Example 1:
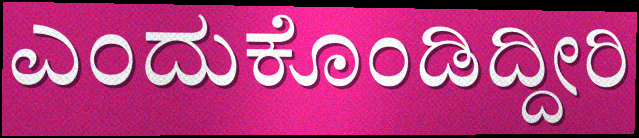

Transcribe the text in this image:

ಎಂದುಕೊಂಡಿದ್ದೀರಿ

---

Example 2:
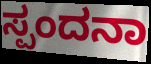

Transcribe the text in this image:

ಸ್ಪಂದನಾ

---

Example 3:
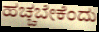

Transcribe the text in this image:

ಹಚ್ಚಬೇಕೆಂದು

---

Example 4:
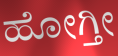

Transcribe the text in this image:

ಹೋಗ್ತೀ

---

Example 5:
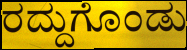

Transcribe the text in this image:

ರದ್ದುಗೊಂಡು